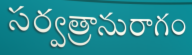
సర్వత్రానురాగం